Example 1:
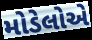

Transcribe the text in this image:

મોડેલોએ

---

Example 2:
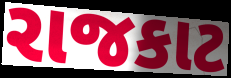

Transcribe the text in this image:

રાજકાટ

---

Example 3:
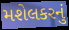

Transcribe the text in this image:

મશેલકરનું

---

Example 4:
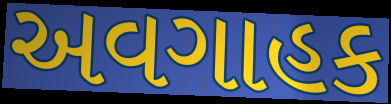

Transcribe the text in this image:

અવગાહક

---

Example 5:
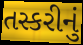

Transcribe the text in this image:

તસ્કરીનું